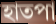
হাতপা